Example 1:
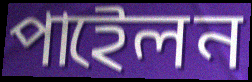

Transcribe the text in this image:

পাইেলন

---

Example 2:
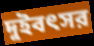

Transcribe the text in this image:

দুইবৎসর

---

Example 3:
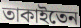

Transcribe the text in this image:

তাকাইতেন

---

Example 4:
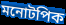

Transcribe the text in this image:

মনোটপিক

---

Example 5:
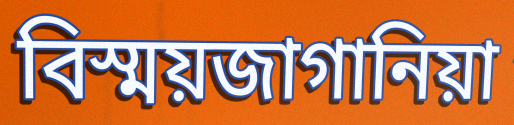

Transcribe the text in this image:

বিস্ময়জাগানিয়া